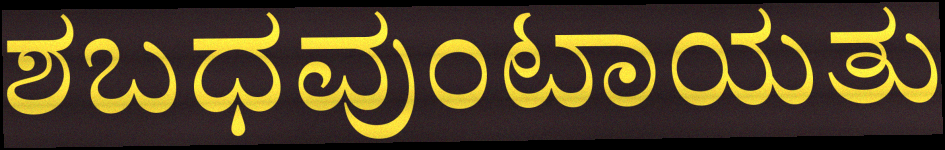
ಶಬಧವುಂಟಾಯತು